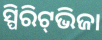
ସ୍ପିରିଟ୍‌ଭିଜା